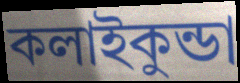
কলাইকুন্ডা